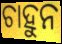
ଚାହୁନ